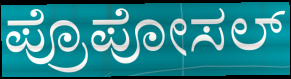
ಪ್ರೊಪೋಸಲ್